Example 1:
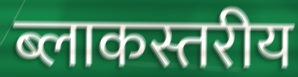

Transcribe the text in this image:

ब्लाकस्तरीय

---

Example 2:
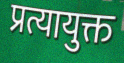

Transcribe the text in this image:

प्रत्यायुक्त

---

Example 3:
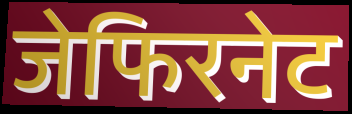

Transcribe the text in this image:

जेफिरनेट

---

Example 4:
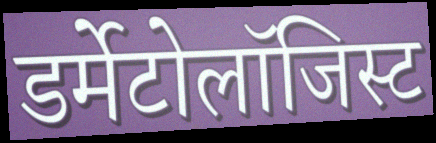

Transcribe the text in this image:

डर्मेटोलॉजिस्ट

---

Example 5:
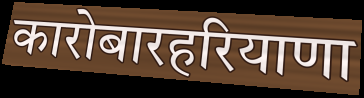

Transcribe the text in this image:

कारोबारहरियाणा